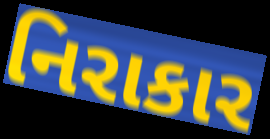
નિરાકાર